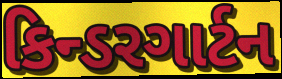
કિન્ડરગાર્ટન